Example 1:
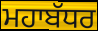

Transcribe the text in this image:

ਮਹਾਬੱਧਰ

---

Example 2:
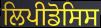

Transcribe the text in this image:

ਲਿਪੀਡੋਸਿਸ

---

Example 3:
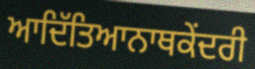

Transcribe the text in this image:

ਆਦਿੱਤਿਆਨਾਥਕੇਂਦਰੀ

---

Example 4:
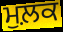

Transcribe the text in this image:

ਮੁਲ਼ਕ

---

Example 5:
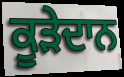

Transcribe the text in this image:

ਕੂੜੇਦਾਨ